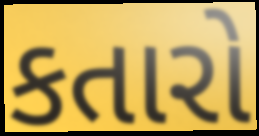
કતારો